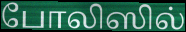
போலிஸில்